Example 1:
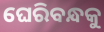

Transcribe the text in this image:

ଘେରିବନ୍ଧକୁ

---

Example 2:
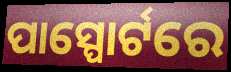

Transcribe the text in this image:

ପାସ୍ପୋର୍ଟରେ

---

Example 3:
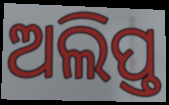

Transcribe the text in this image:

ଅଲିପ୍ତ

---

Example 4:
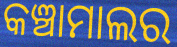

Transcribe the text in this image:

କଞ୍ଚାମାଲର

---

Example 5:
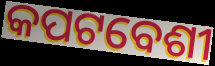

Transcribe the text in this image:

କପଟବେଶୀ